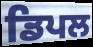
ਡਿਪਲ